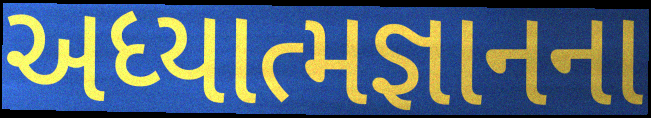
અધ્યાત્મજ્ઞાનના